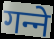
गन्‍ने